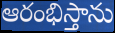
ఆరంభిస్తాను